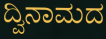
ದ್ವಿನಾಮದ